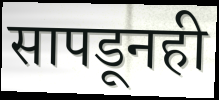
सापडूनही